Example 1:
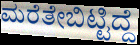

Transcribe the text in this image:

ಮರೆತೇಬಿಟ್ಟಿದ್ದೆ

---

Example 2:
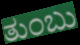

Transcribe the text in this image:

ತುಂಬು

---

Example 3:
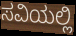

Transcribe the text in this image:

ಸವಿಯಲ್ಲಿ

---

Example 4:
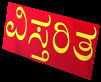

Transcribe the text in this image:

ವಿಸ್ತರಿತ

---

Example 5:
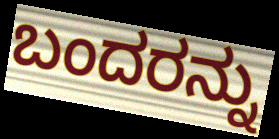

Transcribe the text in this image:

ಬಂದರನ್ನು